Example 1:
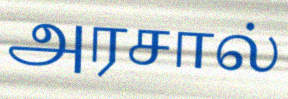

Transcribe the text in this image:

அரசால்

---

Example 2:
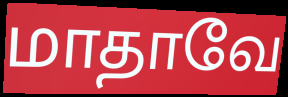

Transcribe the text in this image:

மாதாவே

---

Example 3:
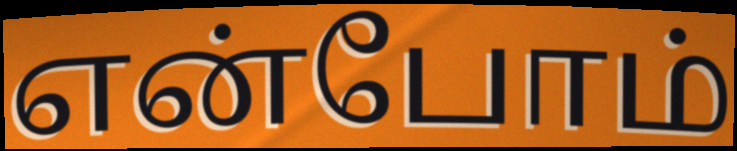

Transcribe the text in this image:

என்போம்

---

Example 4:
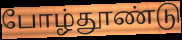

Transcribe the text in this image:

போழ்தூண்டு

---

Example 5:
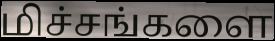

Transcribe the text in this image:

மிச்சங்களை